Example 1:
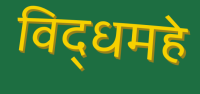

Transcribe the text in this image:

विद्धमहे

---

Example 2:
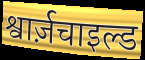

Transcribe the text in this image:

श्वार्ज़चाइल्ड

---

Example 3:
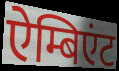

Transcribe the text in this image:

ऐम्बिएंट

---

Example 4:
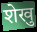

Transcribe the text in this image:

शेखु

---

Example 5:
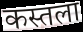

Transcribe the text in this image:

कस्तला